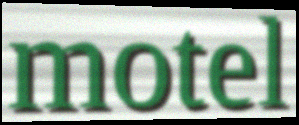
motel